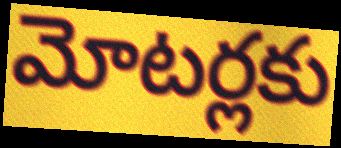
మోటర్లకు